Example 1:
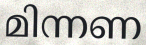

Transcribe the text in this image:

മിന്നണ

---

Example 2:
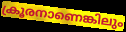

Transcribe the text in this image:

ക്രൂരനാണെങ്കിലും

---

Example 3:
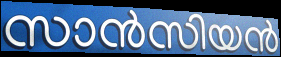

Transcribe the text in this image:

സാൻസിയൻ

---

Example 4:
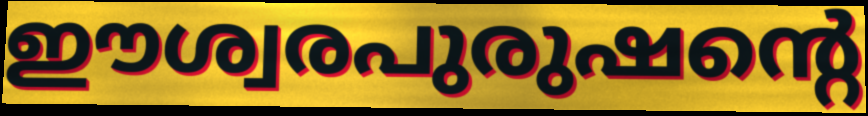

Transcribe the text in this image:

ഈശ്വരപുരുഷന്റെ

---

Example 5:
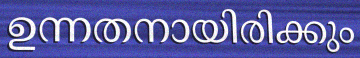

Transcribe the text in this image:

ഉന്നതനായിരിക്കും